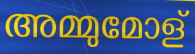
അമ്മുമോള്